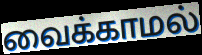
வைக்காமல்